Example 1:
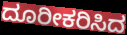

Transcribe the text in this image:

ದೂರೀಕರಿಸಿದ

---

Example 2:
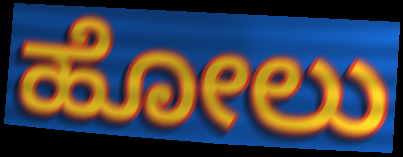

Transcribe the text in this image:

ಹೋಲು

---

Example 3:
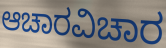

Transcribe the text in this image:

ಆಚಾರವಿಚಾರ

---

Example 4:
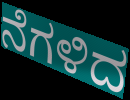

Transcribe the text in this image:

ನೆಗಳಿದ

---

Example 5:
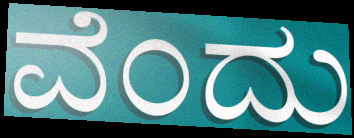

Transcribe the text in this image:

ವೆಂದು